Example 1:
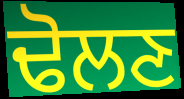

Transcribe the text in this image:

ਢੋਲਣ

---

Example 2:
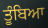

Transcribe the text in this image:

ਤੂੰਬਿਆ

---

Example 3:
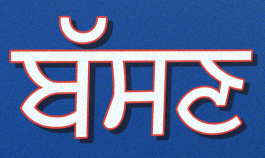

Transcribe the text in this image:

ਬੱਸਣ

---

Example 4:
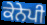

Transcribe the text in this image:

ਕੇਨੇਪੀ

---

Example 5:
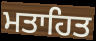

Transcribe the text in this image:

ਮਤਾਹਿਤ